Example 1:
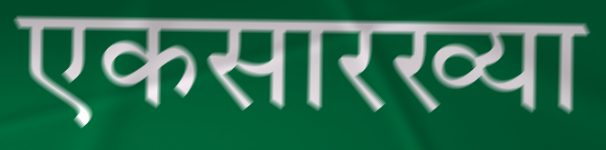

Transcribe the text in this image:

एकसारख्या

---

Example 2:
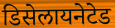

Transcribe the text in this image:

डिसेलायनेटेड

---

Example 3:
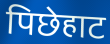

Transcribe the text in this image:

पिछेहाट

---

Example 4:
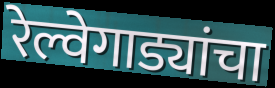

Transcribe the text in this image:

रेल्वेगाड्यांचा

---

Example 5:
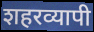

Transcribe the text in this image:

शहरव्यापी